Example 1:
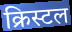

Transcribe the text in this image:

क्रिस्टल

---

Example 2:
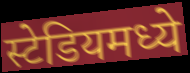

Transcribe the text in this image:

स्टेडियमध्ये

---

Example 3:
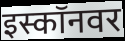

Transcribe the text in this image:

इस्कॉनवर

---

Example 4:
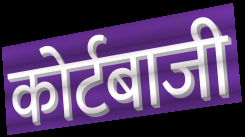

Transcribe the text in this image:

कोर्टबाजी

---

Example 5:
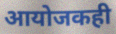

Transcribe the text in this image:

आयोजकही